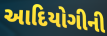
આદિયોગીની